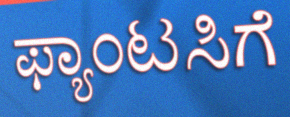
ಫ್ಯಾಂಟಸಿಗೆ